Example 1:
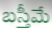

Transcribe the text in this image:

బస్తీమే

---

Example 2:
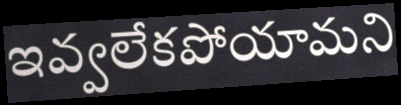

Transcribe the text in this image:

ఇవ్వలేకపోయామని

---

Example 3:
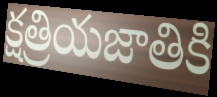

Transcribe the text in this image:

క్షత్రియజాతికి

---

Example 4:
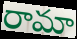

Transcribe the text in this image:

రామా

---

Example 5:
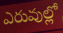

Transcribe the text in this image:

ఎరువుల్లో